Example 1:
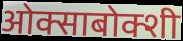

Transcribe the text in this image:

ओक्साबोक्शी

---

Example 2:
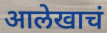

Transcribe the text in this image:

आलेखाचं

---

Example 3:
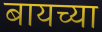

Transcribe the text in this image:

बायच्या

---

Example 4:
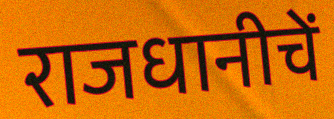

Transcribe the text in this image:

राजधानीचें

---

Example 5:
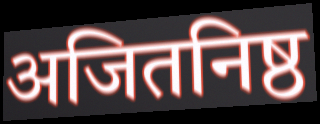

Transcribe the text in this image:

अजितनिष्ठ